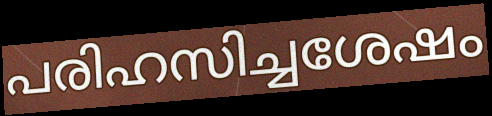
പരിഹസിച്ചശേഷം